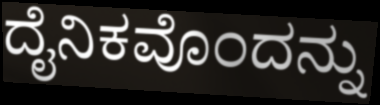
ದೈನಿಕವೊಂದನ್ನು